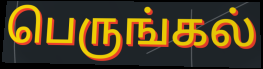
பெருங்கல்